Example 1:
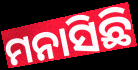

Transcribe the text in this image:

ମନାସିଛି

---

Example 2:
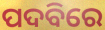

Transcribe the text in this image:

ପଦବିରେ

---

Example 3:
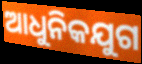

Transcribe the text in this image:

ଆଧୁନିକଯୁଗ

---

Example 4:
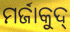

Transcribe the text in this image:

ମର୍ଜାକୁଦ୍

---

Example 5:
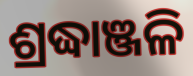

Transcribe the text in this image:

ଶ୍ରଦ୍ଧାଞ୍ଜଳି